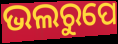
ଭଲରୁପେ